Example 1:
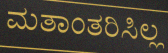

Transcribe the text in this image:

ಮತಾಂತರಿಸಿಲ್ಲ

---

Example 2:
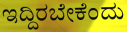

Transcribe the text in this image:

ಇದ್ದಿರಬೇಕೆಂದು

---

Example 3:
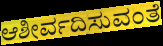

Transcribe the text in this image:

ಆಶೀರ್ವದಿಸುವಂತೆ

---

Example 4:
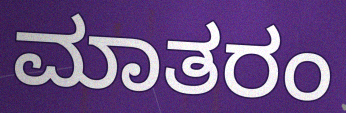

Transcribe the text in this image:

ಮಾತರಂ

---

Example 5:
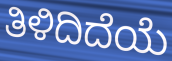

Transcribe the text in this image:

ತಿಳಿದಿದೆಯೆ